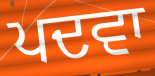
ਪਦਵਾ